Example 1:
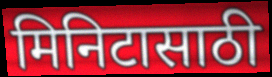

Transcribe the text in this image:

मिनिटासाठी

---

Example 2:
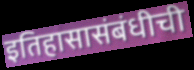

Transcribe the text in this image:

इतिहासासंबंधीची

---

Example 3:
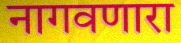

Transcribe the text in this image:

नागवणारा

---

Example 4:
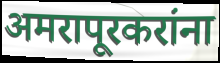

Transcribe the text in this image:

अमरापूरकरांना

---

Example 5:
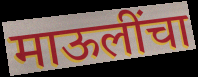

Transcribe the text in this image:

माऊलींचा